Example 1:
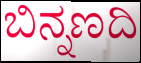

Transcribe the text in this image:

ಬಿನ್ನಣದಿ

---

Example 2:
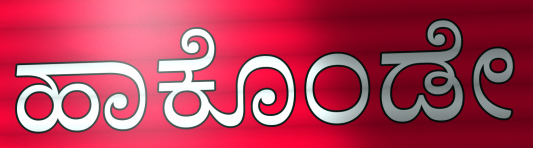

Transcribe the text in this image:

ಹಾಕೊಂಡೇ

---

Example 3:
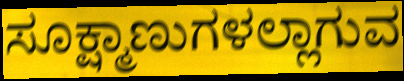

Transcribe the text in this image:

ಸೂಕ್ಷ್ಮಾಣುಗಳಲ್ಲಾಗುವ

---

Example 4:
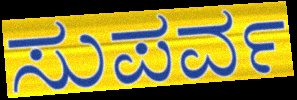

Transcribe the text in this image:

ಸುಪರ್ವ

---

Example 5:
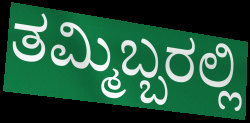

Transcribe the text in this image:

ತಮ್ಮಿಬ್ಬರಲ್ಲಿ